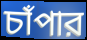
চাঁপার